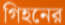
গিহনের